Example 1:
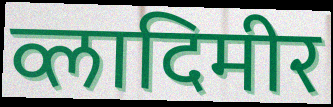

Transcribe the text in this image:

व्लादिमीर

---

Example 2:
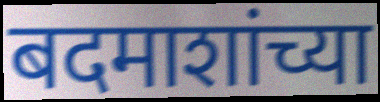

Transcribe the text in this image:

बदमाशांच्या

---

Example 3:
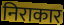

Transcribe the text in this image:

निराकार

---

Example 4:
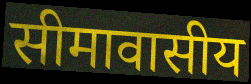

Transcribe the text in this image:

सीमावासीय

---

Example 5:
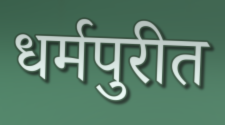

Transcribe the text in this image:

धर्मपुरीत